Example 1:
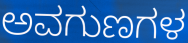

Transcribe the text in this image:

ಅವಗುಣಗಳ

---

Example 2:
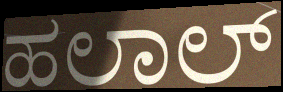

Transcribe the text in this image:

ಹಲಾಲ್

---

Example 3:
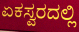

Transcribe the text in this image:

ಏಕಸ್ವರದಲ್ಲಿ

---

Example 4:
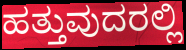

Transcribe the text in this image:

ಹತ್ತುವುದರಲ್ಲಿ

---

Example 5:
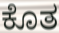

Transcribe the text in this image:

ಕೊತ